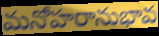
మనోహరానుభావ